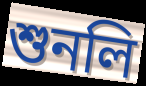
শুনলি